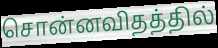
சொன்னவிதத்தில்